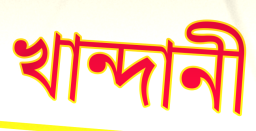
খান্দানী